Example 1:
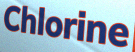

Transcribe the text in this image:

Chlorine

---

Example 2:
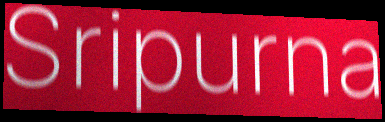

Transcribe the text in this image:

Sripurna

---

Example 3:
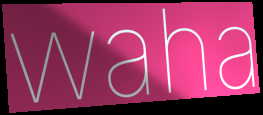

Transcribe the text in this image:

waha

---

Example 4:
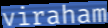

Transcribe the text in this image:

viraham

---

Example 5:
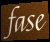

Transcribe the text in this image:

fase